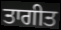
ਤਾਗੀਤ